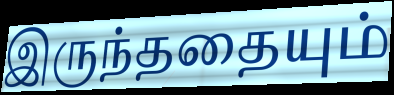
இருந்ததையும்